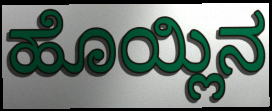
ಹೊಯ್ಲಿನ